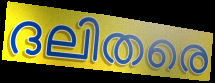
ദലിതരെ